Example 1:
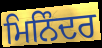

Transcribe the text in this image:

ਮਿਨਿੰਦਰ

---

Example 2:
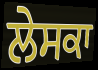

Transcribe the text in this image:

ਲੇਸਕਾ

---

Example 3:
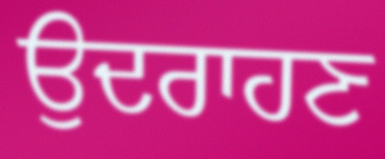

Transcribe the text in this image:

ਉਦਰਾਹਣ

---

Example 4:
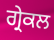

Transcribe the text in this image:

ਗ੍ਰੇਕਲ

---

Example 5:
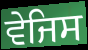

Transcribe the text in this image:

ਵੇਜਿਸ